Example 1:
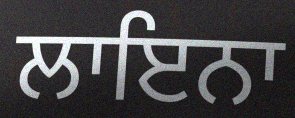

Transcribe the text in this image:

ਲਾਇਨਾ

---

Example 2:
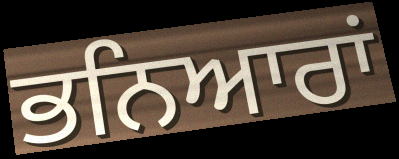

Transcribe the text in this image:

ਭਨਿਆਰਾਂ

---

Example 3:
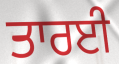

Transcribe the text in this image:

ਤਾਰਈ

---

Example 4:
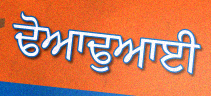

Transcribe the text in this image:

ਢੋਆਢੁਆਈ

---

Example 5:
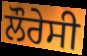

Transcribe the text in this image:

ਲੌਰੇਸੀ